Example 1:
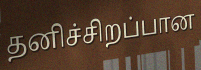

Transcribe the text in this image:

தனிச்சிறப்பான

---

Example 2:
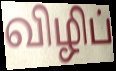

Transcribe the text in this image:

விழிப்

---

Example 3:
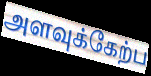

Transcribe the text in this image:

அளவுக்கேற்ப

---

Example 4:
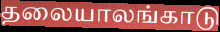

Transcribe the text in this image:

தலையாலங்காடு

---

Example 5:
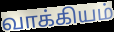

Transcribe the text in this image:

வாக்கியம்